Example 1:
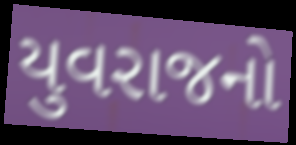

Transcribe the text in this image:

યુવરાજનો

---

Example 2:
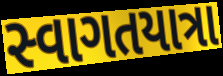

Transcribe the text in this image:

સ્વાગતયાત્રા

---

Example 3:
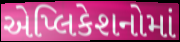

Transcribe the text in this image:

એપ્લિકેશનોમાં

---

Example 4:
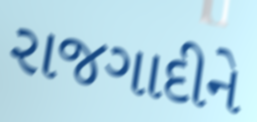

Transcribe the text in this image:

રાજગાદીને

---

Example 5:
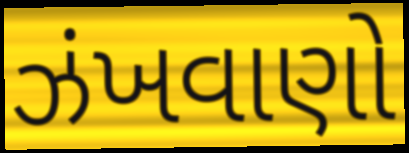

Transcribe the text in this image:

ઝંખવાણો